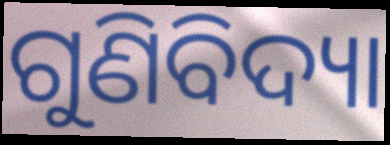
ଗୁଣିବିଦ୍ୟା